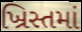
ખ્રિસ્તમાં